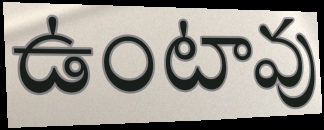
ఉంటావు